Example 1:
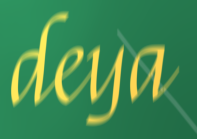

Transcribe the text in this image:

deya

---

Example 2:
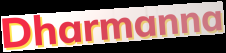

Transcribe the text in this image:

Dharmanna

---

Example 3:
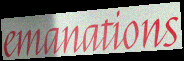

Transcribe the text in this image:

emanations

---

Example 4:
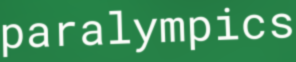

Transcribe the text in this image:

paralympics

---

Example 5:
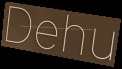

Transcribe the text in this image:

Dehu